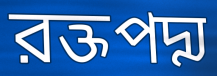
রক্তপদ্ম